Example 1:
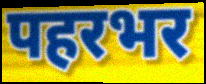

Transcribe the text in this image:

पहरभर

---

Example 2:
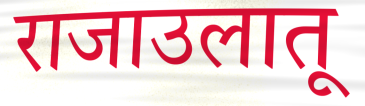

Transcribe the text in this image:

राजाउलातू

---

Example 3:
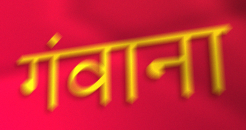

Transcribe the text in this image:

गंवाना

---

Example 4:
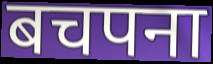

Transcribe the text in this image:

बचपना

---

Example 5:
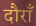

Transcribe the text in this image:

दौराँ